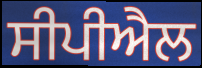
ਸੀਪੀਐਲ